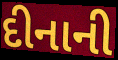
દીનાની